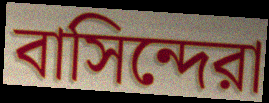
বাসিন্দেরা